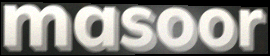
masoor